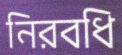
নিরবধি